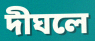
দীঘলে